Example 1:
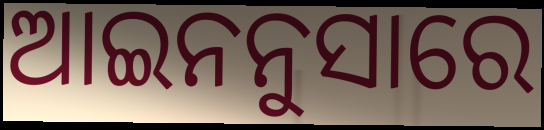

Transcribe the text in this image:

ଆଇନନୁସାରେ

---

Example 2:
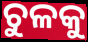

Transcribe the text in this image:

ଚୁଳକୁ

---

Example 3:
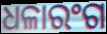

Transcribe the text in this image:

ଧଳାରଂଗ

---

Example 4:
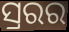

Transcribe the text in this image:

ସ୍ରରର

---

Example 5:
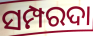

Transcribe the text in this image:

ସମ୍ପରଦା